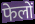
फेलों